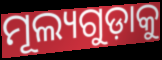
ମୂଲ୍ୟଗୁଡ଼ାକୁ